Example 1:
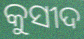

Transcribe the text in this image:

କୁସୀଦ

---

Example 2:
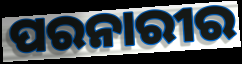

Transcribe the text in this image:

ପରନାରୀର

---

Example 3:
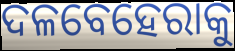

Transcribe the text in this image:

ଦଳବେହେରାକୁ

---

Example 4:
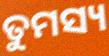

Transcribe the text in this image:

ତୁମସ୍ୟ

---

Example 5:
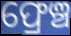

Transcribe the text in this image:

ଫ୍ରେଞ୍ଚ